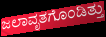
ಜಲಾವೃತಗೊಂಡಿತ್ತು